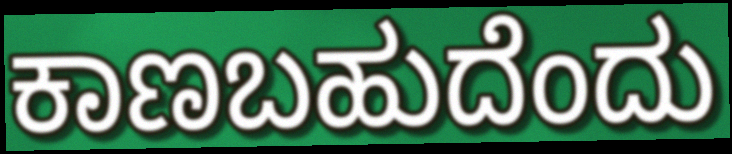
ಕಾಣಬಹುದೆಂದು